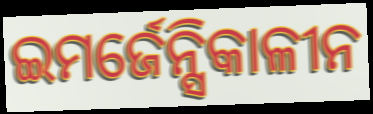
ଇମର୍ଜେନ୍ସିକାଳୀନ